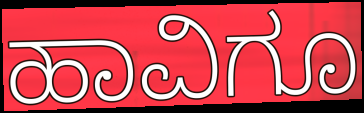
ಹಾವಿಗೂ